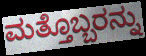
ಮತ್ತೊಬ್ಬರನ್ನು